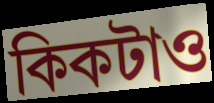
কিকটাও